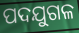
ପଦଯୁଗଳ